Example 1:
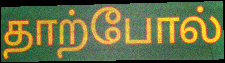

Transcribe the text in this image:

தாற்போல்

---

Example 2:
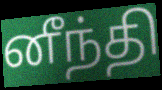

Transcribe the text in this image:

னீந்தி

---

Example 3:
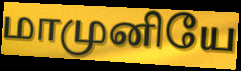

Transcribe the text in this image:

மாமுனியே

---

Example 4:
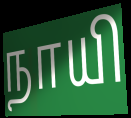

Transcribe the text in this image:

நாயி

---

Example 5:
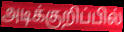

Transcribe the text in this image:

அடிக்குறிப்பில்